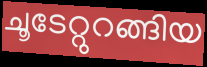
ചൂടേറ്റുറങ്ങിയ